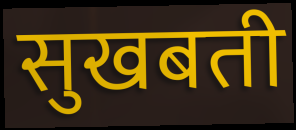
सुखबती